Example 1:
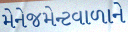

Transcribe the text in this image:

મેનેજમેન્ટવાળાને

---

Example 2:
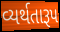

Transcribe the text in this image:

વ્યર્થતારૂપ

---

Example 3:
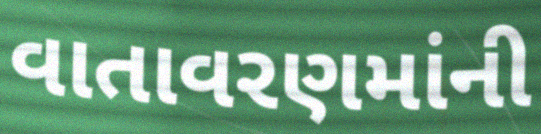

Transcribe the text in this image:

વાતાવરણમાંની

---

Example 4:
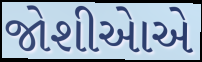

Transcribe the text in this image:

જોશીએાએ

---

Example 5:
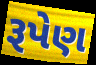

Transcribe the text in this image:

રૂપેણ